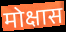
मोक्षास